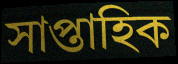
সাপ্তাহিক